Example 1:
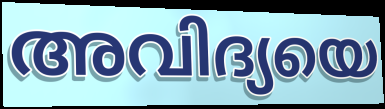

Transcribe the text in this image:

അവിദ്യയെ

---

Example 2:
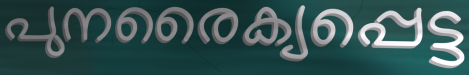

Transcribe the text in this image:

പുനരൈക്യപ്പെട്ട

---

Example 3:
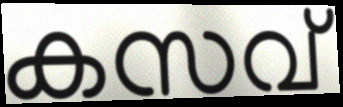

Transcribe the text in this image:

കസവ്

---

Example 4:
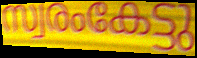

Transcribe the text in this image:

സ്വരംകേട്ടു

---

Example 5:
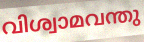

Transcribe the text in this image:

വിശ്വാമവന്തു